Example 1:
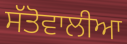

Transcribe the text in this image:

ਸੱਤੋਵਾਲੀਆ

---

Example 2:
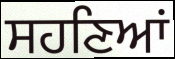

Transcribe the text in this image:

ਸਹਣਿਆਂ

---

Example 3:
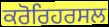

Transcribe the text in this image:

ਕਰੋਰਿਹਰਸਲ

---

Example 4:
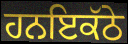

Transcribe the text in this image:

ਹਨਇਕੱਠੇ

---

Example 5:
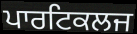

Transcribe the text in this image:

ਪਾਰਟਿਕਲਜ